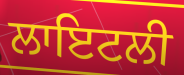
ਲਾਇਟਲੀ